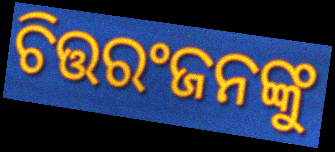
ଚିତ୍ତରଂଜନଙ୍କୁ